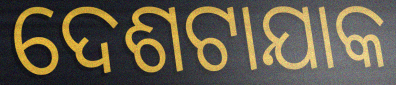
ଦେଶଟାଯାକ